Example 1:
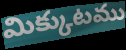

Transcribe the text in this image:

మిక్కుటము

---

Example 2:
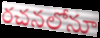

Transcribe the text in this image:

రచనలోనూ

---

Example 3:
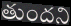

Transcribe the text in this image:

తుందని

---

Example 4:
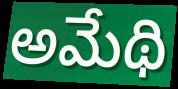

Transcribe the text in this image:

అమేథి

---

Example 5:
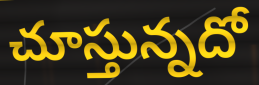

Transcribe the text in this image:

చూస్తున్నదో